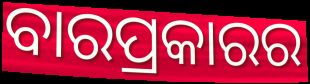
ବାରପ୍ରକାରର